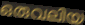
ഒരുവലിയ